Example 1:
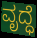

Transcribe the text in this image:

ವೃದ್ಧೆ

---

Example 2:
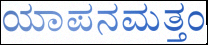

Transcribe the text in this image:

ಯಾಪನಮತ್ತಂ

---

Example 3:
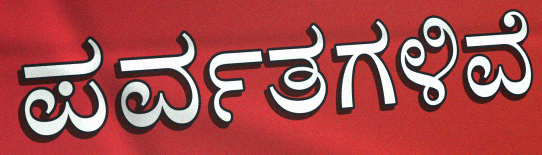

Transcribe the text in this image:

ಪರ್ವತಗಳಿವೆ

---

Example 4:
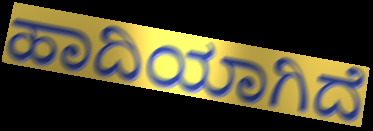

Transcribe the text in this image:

ಹಾದಿಯಾಗಿದೆ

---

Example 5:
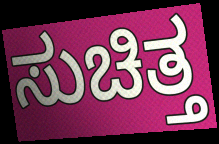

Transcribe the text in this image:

ಸುಚಿತ್ತ